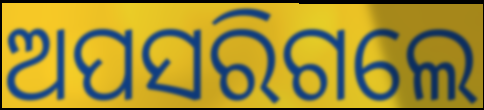
ଅପସରିଗଲେ